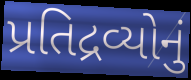
પ્રતિદ્રવ્યોનું